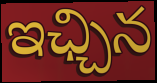
ఇఛ్చిన